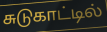
சுடுகாட்டில்